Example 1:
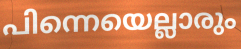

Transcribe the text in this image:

പിന്നെയെല്ലാരും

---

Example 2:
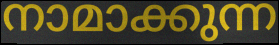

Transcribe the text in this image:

നാമാക്കുന്ന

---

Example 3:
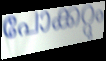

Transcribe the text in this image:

പോക്കറ്റും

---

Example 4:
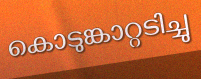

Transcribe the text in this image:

കൊടുങ്കാറ്റടിച്ചു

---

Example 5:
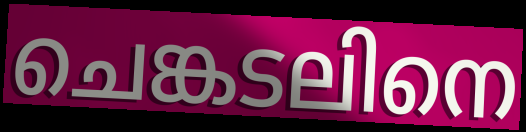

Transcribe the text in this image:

ചെങ്കടലിനെ